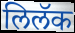
लिलॅक